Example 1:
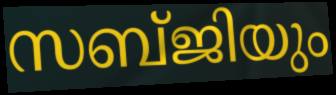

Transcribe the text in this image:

സബ്ജിയും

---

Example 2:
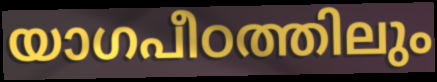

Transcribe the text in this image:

യാഗപീഠത്തിലും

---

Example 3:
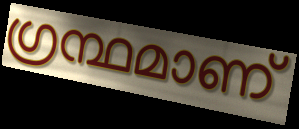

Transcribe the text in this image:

ഗ്രന്ഥമാണ്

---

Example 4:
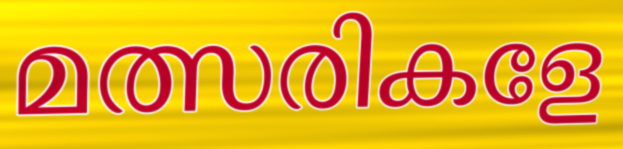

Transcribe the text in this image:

മത്സരികളേ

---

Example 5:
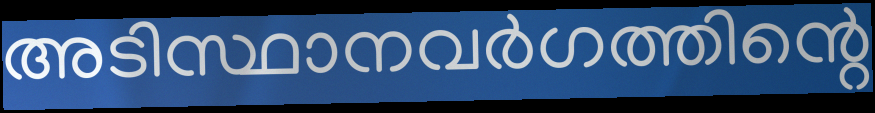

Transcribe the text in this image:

അടിസ്ഥാനവർഗത്തിന്റെ